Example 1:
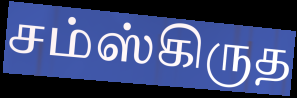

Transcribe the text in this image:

சம்ஸ்கிருத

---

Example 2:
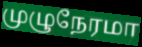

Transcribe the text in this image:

முழுநேரமா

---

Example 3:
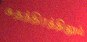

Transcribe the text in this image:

சுதந்திரத்திலும்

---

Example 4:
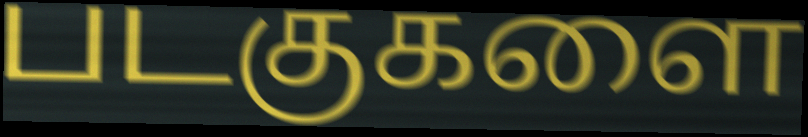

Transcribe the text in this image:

படகுகளை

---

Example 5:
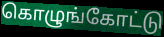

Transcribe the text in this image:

கொழுங்கோட்டு